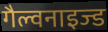
गैल्वनाइज्ड